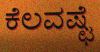
ಕೆಲವಷ್ಟೆ